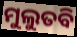
ମୁଲୁତବି